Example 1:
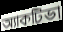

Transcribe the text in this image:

অ্যাকটিভা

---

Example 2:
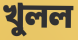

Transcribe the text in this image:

খুলল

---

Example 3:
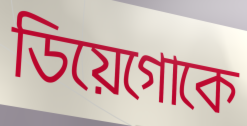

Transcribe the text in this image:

ডিয়েগোকে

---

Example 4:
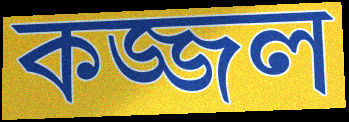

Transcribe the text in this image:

কজ্জল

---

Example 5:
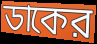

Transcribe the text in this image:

ডাকের